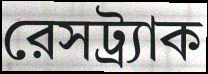
রেসট্র্যাক